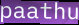
paathu